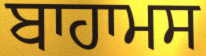
ਬਾਹਾਮਸ